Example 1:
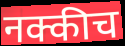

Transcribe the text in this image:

नक्कीच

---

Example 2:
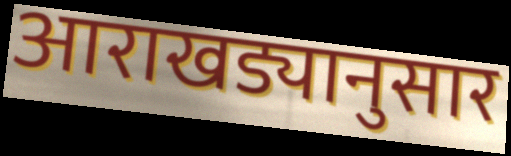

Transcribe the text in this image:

आराखड्यानुसार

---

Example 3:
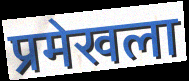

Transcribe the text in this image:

प्रमेखला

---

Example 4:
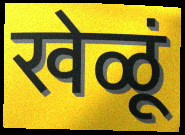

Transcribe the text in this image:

खेळूं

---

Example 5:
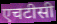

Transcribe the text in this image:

एचटीसी